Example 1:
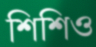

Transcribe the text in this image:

শিশিও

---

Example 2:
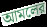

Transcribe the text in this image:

আমলের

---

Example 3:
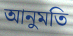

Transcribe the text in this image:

আনুমতি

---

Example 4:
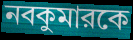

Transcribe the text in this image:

নবকুমারকে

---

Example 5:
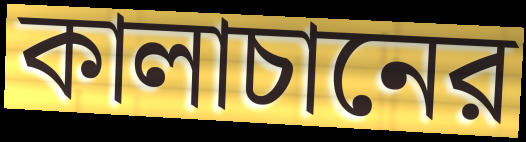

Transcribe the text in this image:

কালাচানের